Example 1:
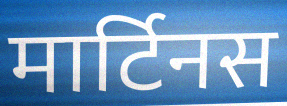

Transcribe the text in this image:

मार्टिनस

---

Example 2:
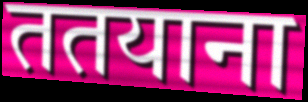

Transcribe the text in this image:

ततयाना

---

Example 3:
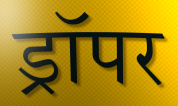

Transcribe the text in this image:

ड्रॉपर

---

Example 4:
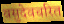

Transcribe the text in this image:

वसुदेवचरित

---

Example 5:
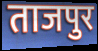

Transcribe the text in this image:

ताजपुर